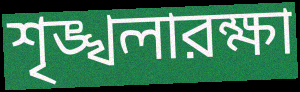
শৃঙ্খলারক্ষা